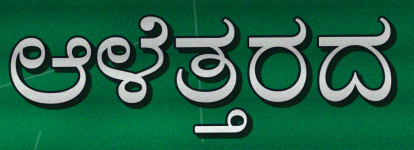
ಆಳೆತ್ತರದ